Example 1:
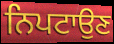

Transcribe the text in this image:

ਨਿਪਟਾਉਣ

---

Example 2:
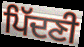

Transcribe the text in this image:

ਪਿੱਦਣੀ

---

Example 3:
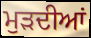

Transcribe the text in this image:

ਮੁੜਦੀਆਂ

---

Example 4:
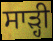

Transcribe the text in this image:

ਸਾੜ੍ਹੀ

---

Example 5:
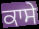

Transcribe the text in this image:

ਕਾਸੇ